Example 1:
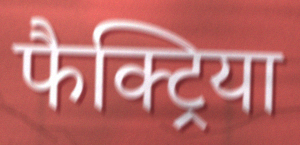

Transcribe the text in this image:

फैक्ट्रिया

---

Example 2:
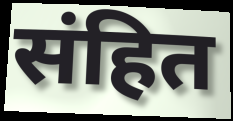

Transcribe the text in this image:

संहित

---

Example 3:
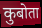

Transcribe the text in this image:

कुबोता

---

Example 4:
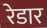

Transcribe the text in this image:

रेडार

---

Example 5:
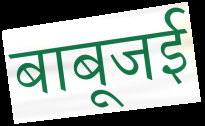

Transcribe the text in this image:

बाबूजई